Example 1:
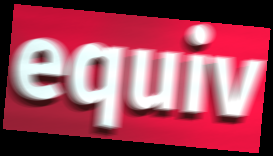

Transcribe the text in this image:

equiv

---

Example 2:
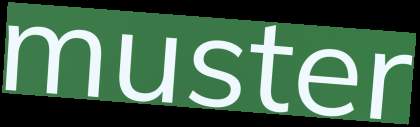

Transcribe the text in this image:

muster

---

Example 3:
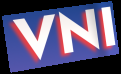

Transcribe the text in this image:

VNI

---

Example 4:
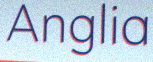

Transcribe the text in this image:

Anglia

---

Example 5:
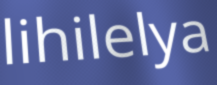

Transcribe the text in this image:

lihilelya